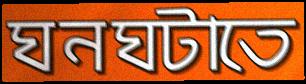
ঘনঘটাতে